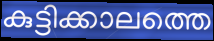
കുട്ടിക്കാലത്തെ